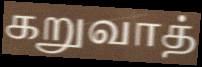
கறுவாத்